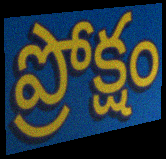
ప్రోక్షం